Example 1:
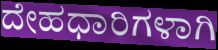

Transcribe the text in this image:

ದೇಹಧಾರಿಗಳಾಗಿ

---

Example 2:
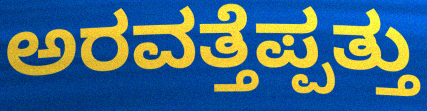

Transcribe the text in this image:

ಅರವತ್ತೆಪ್ಪತ್ತು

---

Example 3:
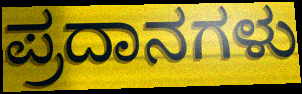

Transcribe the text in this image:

ಪ್ರದಾನಗಳು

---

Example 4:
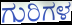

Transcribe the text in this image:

ಗುರಿಗಳ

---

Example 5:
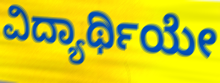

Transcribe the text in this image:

ವಿದ್ಯಾರ್ಥಿಯೇ